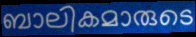
ബാലികമാരുടെ